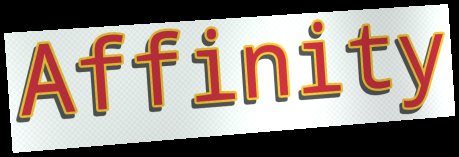
Affinity